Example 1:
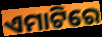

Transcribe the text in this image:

ଏମାଟିରେ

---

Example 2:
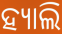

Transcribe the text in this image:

ହ୍ୟାଲି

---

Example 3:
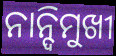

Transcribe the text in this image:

ନାନ୍ଦିମୁଖୀ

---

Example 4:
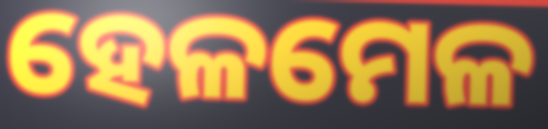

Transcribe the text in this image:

ହେଳମେଳ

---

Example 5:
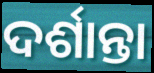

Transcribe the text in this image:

ଦର୍ଶାନ୍ତା